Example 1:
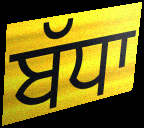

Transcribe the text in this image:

ਬੱਧਾ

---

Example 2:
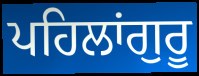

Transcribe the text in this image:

ਪਹਿਲਾਂਗੁਰੂ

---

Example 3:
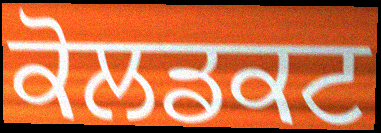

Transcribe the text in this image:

ਕੋਲਡਕਟ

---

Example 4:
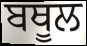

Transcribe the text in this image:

ਬਥੂਲ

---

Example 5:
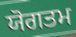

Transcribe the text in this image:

ਯੋਗਤਮ